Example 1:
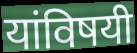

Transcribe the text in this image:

यांविषयी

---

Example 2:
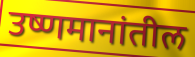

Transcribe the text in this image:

उष्णमानांतील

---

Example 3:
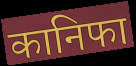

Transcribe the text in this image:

कानिफा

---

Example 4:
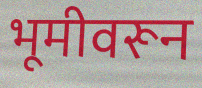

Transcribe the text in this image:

भूमीवरून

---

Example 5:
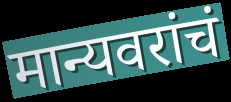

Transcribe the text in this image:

मान्यवरांचं